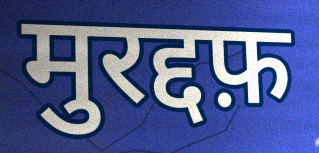
मुरद्दफ़